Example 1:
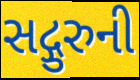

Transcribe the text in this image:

સદ્ગુરુની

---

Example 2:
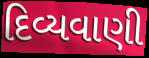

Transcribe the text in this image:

દિવ્યવાણી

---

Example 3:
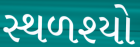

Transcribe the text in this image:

સ્થળશ્યો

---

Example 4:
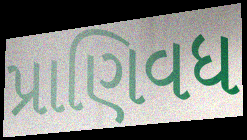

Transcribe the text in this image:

પ્રાણિવધ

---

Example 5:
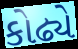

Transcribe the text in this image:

કોઢ્યે